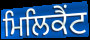
ਮਿਲਿਕੈਂਟ